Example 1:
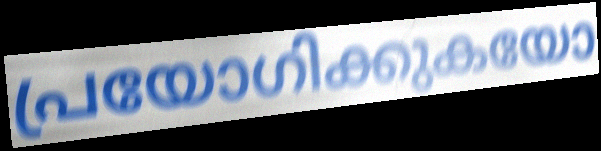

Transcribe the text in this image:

പ്രയോഗിക്കുകയോ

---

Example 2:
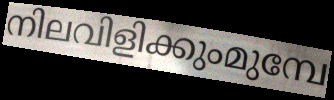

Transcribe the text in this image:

നിലവിളിക്കുംമുമ്പേ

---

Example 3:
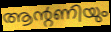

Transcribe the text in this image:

ആന്റണിയും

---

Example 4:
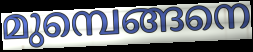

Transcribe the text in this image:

മുമ്പെങ്ങനെ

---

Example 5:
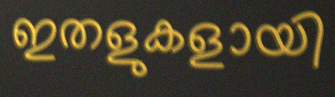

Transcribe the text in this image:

ഇതളുകളായി